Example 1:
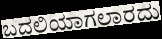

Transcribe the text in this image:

ಬದಲಿಯಾಗಲಾರದು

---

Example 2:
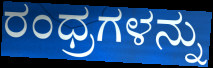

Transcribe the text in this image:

ರಂಧ್ರಗಳನ್ನು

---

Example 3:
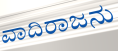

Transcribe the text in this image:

ವಾದಿರಾಜನು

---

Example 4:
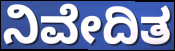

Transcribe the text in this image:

ನಿವೇದಿತ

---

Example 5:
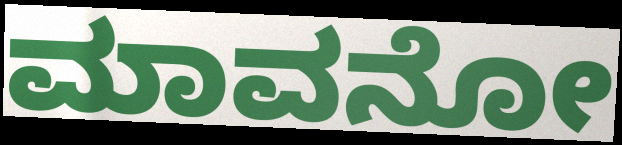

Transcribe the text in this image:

ಮಾವನೋ